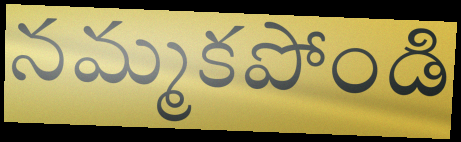
నమ్మకపోండి